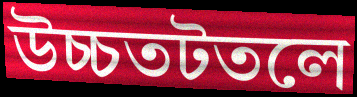
উচ্চতটতলে